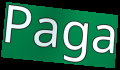
Paga